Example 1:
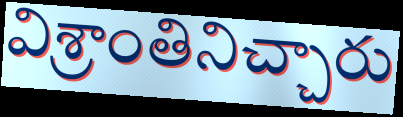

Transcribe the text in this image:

విశ్రాంతినిచ్చారు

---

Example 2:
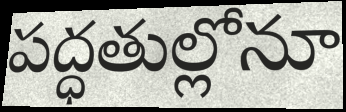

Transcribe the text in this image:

పద్ధతుల్లోనూ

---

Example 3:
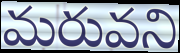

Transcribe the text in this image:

మరువని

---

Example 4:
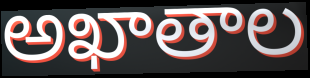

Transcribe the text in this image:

అఖాతాల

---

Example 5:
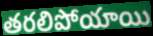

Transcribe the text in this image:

తరలిపోయాయి